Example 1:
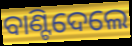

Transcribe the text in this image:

ବାଣ୍ଟିଦେଲେ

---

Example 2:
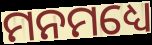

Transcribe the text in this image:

ମନମଧ୍ୟେ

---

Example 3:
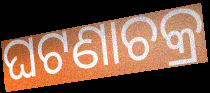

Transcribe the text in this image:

ଘଟଣାଚକ୍ର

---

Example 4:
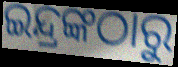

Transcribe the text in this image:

ଇନ୍ଦ୍ରଙ୍କଠାରୁ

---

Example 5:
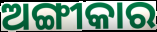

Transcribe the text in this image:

ଅଙ୍ଗୀକାର